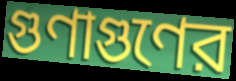
গুণাগুণের